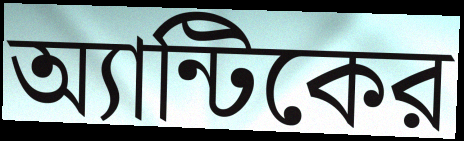
অ্যান্টিকের